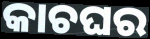
କାଚଘର